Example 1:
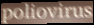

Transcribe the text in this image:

poliovirus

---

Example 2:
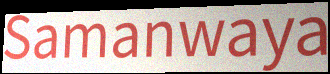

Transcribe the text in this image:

Samanwaya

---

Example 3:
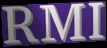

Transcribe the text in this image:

RMI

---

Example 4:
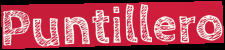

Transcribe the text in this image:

Puntillero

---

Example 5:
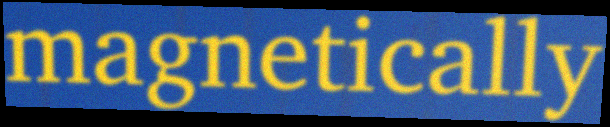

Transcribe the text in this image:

magnetically